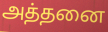
அத்தனை